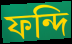
ফন্দি